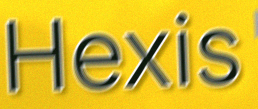
Hexis